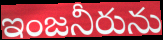
ఇంజనీరును